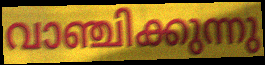
വാഞ്ചിക്കുന്നു